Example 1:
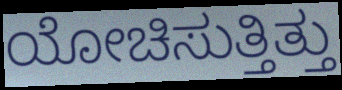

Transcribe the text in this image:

ಯೋಚಿಸುತ್ತಿತ್ತು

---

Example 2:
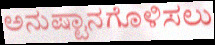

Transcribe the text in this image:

ಅನುಷ್ಟಾನಗೊಳಿಸಲು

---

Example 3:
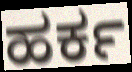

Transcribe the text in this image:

ಹರ್ಕ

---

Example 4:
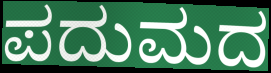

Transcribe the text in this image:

ಪದುಮದ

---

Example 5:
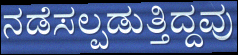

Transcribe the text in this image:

ನಡೆಸಲ್ಪಡುತ್ತಿದ್ದವು